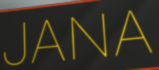
JANA